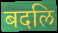
बदलि